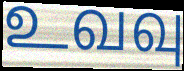
உவவு